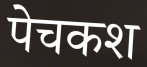
पेचकश